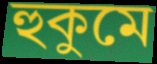
হুকুমে